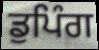
ਡੁਪਿੰਗ